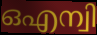
ഒഎന്വി